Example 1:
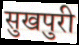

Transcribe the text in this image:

सुखपुरी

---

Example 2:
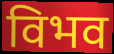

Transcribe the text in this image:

विभव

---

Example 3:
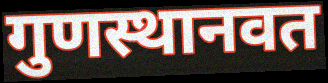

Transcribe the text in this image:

गुणस्थानवत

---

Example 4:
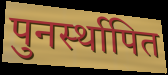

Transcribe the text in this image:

पुनर्स्थापित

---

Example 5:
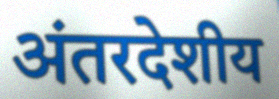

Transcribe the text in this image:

अंतरदेशीय